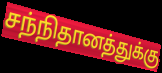
சந்நிதானத்துக்கு